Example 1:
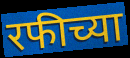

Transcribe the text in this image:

रफीच्या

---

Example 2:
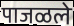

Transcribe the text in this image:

पाजळले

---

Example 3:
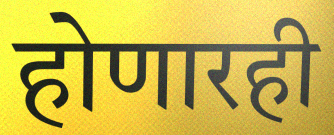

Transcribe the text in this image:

होणारही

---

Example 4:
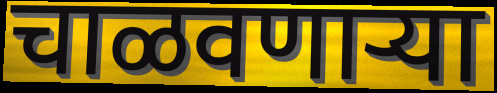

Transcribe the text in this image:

चाळवणाऱ्या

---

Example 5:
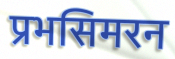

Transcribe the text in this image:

प्रभसिमरन